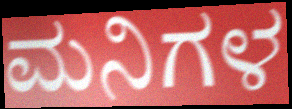
ಮನಿಗಳ